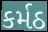
કર્મઠ